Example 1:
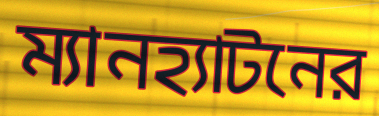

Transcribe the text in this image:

ম্যানহ্যাটনের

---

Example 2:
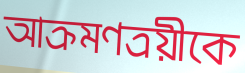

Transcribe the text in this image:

আক্রমণত্রয়ীকে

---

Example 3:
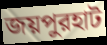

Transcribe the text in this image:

জয়পুরহাট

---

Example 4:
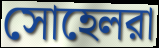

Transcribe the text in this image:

সোহেলরা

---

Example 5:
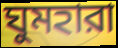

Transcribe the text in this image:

ঘুমহারা